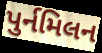
પુર્નમિલન